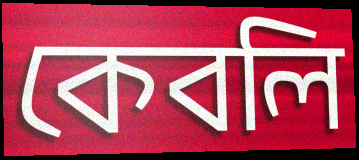
কেবলি